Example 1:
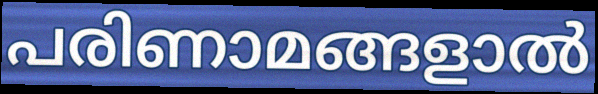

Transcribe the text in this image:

പരിണാമങ്ങളാൽ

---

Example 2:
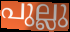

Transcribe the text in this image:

പുല്ലു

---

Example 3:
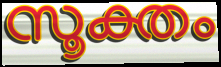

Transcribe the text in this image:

സൂക്തം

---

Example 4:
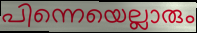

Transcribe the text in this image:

പിന്നെയെല്ലാരും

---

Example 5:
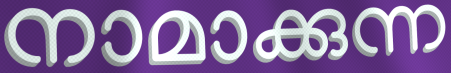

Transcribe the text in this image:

നാമാക്കുന്ന